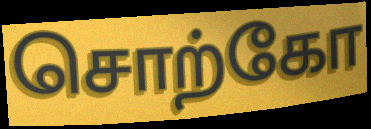
சொற்கோ